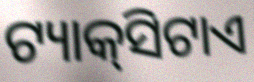
ଟ୍ୟାକ୍‌ସିଟାଏ